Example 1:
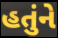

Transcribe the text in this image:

હતુંને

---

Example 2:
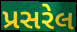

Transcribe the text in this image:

પ્રસરેલ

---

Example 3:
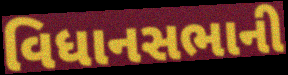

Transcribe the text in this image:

વિધાનસભાની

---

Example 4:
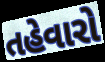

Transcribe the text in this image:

તહેવારો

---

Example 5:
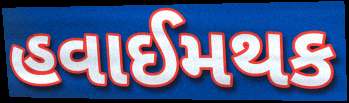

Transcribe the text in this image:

હવાઈમથક